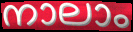
നാലാം